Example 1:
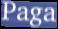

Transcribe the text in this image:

Paga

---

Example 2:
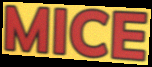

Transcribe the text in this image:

MICE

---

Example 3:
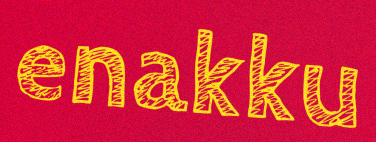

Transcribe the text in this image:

enakku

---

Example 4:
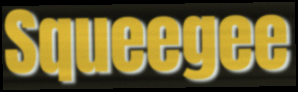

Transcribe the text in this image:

Squeegee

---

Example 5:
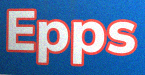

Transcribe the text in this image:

Epps